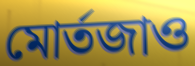
মোর্তজাও